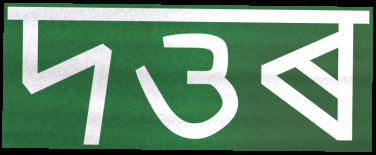
দত্তৰ